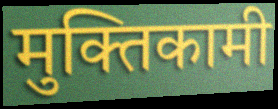
मुक्तिकामी